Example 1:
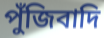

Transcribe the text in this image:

পুঁজিবাদি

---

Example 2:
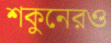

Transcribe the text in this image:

শকুনেরও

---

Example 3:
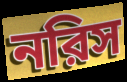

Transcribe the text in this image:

নরিস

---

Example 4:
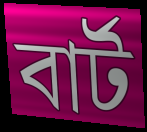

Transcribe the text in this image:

বার্ট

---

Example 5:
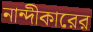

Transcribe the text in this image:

নান্দীকারের